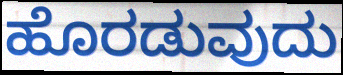
ಹೊರಡುವುದು